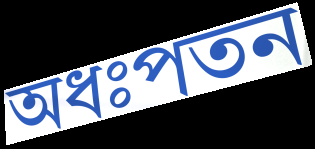
অধঃপতন